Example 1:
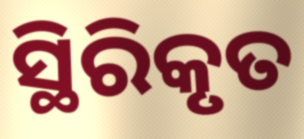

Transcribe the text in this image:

ସ୍ଥିରିକୃତ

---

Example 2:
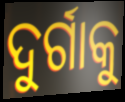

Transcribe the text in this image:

ଦୁର୍ଗାକୁ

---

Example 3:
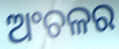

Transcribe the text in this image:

ଅଂଚଳର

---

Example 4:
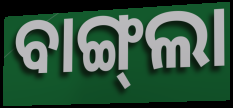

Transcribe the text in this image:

ବାଙ୍ଗ୍‍ଲା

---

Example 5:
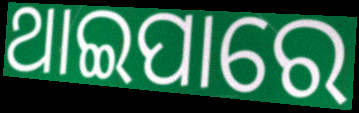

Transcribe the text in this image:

ଥାଇପାରେ